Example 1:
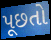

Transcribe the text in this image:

પૂછતો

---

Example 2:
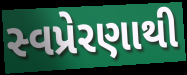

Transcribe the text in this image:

સ્વપ્રેરણાથી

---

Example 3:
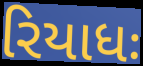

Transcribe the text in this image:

રિયાધઃ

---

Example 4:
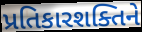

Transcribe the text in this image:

પ્રતિકારશક્તિને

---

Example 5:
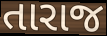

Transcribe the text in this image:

તારાજ